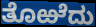
ತೊಱೆದು